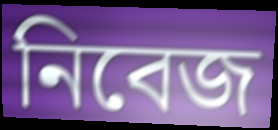
নিবেজ